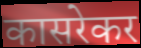
कासरेकर